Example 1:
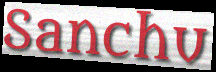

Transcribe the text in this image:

Sanchu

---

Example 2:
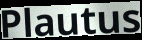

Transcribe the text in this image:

Plautus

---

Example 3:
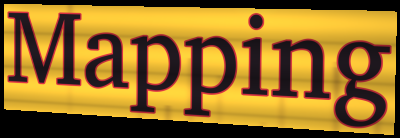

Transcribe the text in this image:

Mapping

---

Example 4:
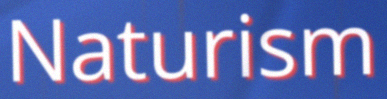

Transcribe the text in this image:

Naturism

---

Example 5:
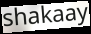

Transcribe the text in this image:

shakaay